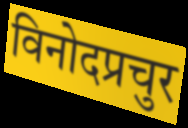
विनोदप्रचुर